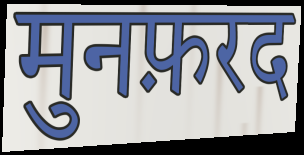
मुनफ़रद